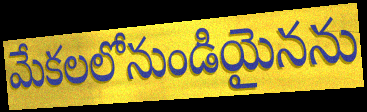
మేకలలోనుండియైనను